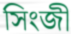
সিংজী